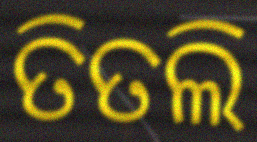
ତିତଲି